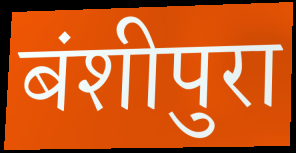
बंशीपुरा